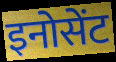
इनोसेंट